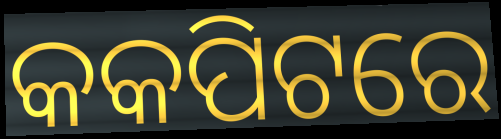
କକପିଟରେ